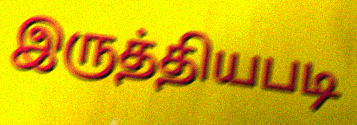
இருத்தியபடி